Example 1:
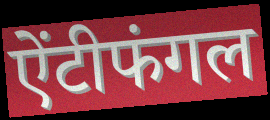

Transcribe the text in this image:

ऐंटीफंगल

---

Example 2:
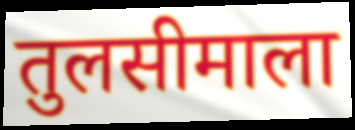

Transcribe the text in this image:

तुलसीमाला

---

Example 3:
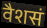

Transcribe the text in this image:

वैशसं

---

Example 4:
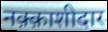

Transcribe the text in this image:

नक़्क़ाशीदार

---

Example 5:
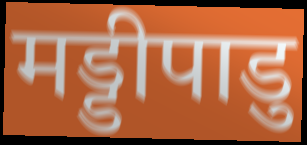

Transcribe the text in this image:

मड्डीपाडु